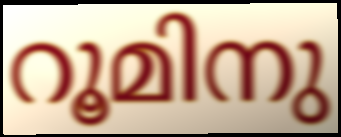
റൂമിനു